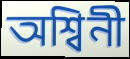
অশ্বিনী